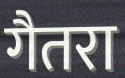
गैतरा